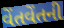
વેંતવેંતની